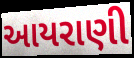
આયરાણી